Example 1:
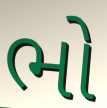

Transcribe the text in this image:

ભો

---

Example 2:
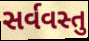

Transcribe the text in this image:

સર્વવસ્તુ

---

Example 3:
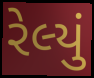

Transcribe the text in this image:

રેલ્યું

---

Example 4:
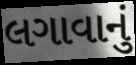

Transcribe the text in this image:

લગાવાનું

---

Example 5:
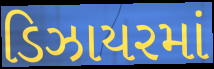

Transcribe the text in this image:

ડિઝાયરમાં